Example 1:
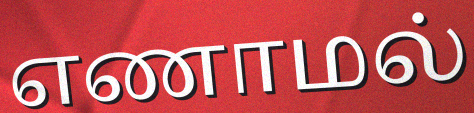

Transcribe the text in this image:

எணாமல்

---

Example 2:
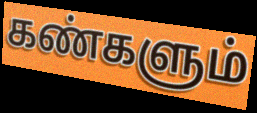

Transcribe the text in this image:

கண்களும்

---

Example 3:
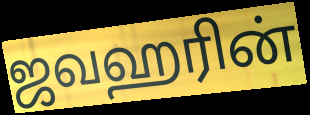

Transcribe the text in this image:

ஜவஹரின்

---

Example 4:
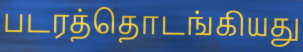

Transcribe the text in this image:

படரத்தொடங்கியது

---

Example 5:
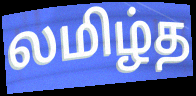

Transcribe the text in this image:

லமிழ்த